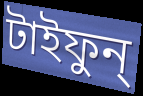
টাইফুন্